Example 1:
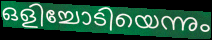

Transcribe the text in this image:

ഒളിച്ചോടിയെന്നും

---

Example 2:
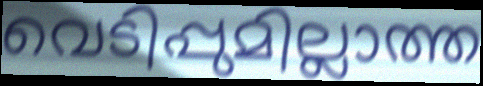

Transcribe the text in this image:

വെടിപ്പുമില്ലാത്ത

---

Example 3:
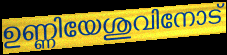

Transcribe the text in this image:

ഉണ്ണിയേശുവിനോട്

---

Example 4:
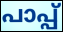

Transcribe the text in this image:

പാപ്പ്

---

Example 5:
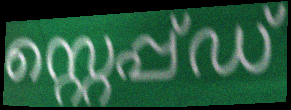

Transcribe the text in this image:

സ്റ്റെപ്പ്ഡ്